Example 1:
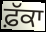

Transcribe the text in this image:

ਫ਼ੱਕਾ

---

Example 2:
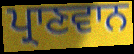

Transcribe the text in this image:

ਪ੍ਰਾਣਵਾਨ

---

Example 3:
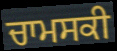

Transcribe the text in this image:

ਚਾਮਸਕੀ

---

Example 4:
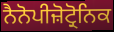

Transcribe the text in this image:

ਨੈਨੋਪੀਜ਼ੋਟ੍ਰੋਨਿਕ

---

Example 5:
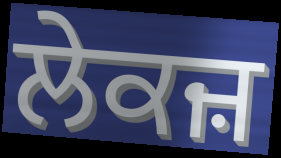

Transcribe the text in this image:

ਲੇਕਜ਼